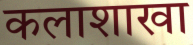
कलाशाखा